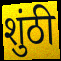
शुंठी